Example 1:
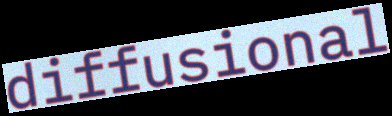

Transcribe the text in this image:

diffusional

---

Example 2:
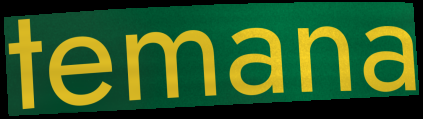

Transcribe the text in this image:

temana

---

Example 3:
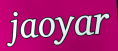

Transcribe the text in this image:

jaoyar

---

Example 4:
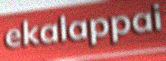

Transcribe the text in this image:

ekalappai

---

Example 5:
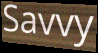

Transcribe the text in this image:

Savvy